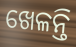
ଖେଳନ୍ତି